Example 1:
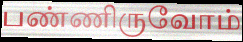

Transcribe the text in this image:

பண்ணிருவோம்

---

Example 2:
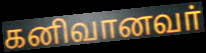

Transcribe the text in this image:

கனிவானவர்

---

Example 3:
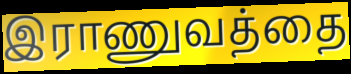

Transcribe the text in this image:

இராணுவத்தை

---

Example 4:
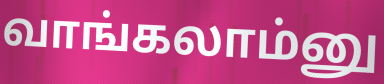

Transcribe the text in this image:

வாங்கலாம்னு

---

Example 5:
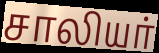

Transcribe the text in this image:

சாலியர்